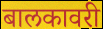
बालकावरी